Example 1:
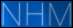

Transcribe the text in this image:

NHM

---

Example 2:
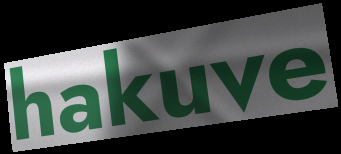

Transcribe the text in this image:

hakuve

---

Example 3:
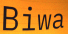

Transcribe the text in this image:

Biwa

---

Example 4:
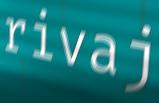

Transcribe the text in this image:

rivaj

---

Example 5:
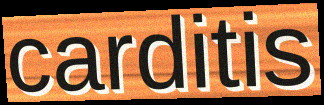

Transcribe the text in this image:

carditis